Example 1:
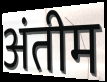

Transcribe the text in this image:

अंतीम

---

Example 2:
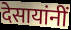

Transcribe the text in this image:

देसायांनीं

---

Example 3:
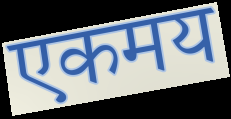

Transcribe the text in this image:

एकमय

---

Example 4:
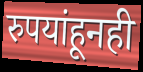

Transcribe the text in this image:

रुपयांहूनही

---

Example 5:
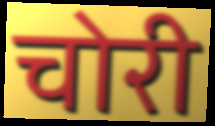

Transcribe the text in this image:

चोरी